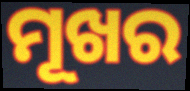
ମୂଖର